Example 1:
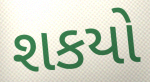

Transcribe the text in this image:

શકયો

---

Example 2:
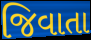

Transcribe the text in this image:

જિવાતા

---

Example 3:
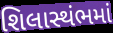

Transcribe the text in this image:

શિલાસ્થંભમાં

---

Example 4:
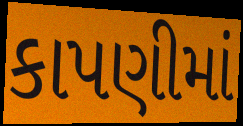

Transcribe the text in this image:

કાપણીમાં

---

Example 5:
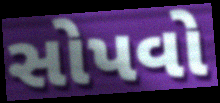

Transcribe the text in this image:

સોપવો